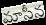
మాసీన